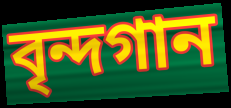
বৃন্দগান